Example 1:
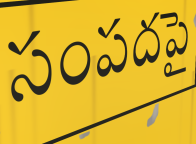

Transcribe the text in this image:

సంపదపై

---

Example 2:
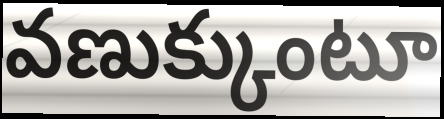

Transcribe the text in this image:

వణుక్కుంటూ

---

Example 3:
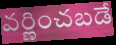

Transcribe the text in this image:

వర్ణించబడే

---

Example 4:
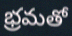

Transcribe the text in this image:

భ్రమతో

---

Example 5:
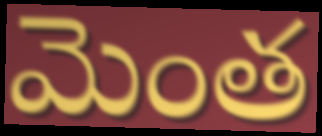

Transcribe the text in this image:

మెంత